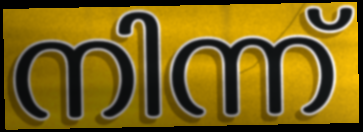
നിന്ന്